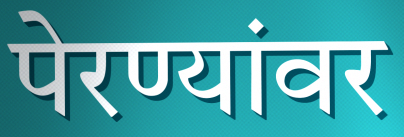
पेरण्यांवर